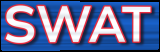
SWAT